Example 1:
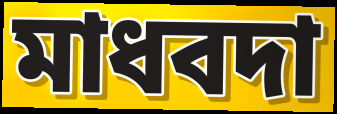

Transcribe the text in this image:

মাধবদা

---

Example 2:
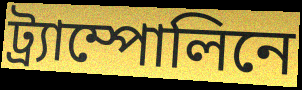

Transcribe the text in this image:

ট্র্যাম্পোলিনে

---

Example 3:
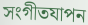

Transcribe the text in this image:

সংগীতযাপন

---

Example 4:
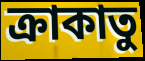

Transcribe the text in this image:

ক্রাকাতু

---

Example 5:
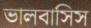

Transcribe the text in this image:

ভালবাসিস